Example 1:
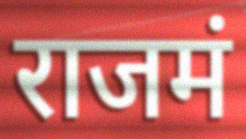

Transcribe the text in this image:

राजमं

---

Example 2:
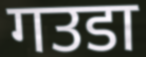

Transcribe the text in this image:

गउडा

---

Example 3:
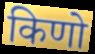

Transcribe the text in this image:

किणो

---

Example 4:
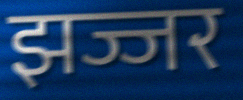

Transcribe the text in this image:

झज्जर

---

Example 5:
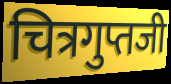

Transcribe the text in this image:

चित्रगुप्तजी